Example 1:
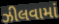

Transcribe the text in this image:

ઝીલવામાં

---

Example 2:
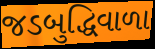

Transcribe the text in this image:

જડબુદ્ધિવાળા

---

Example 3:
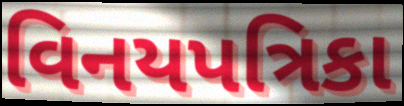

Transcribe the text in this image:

વિનયપત્રિકા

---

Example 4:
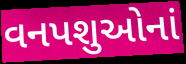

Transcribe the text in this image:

વનપશુઓનાં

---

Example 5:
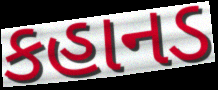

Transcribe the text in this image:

કહાનડ